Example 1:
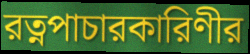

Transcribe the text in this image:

রত্নপাচারকারিণীর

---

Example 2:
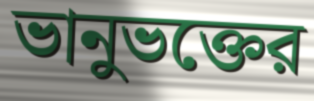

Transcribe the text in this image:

ভানুভক্তের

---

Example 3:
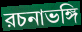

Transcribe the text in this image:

রচনাভঙ্গি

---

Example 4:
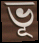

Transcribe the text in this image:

ভূ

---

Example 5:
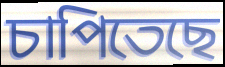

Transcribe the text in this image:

চাপিতেছে